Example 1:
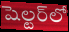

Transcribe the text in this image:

షెల్టర్‌లో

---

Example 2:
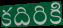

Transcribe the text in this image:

కదిరికి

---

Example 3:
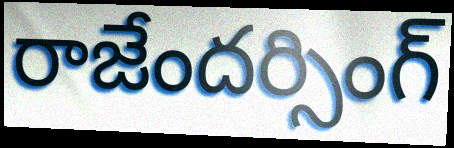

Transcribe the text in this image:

రాజేందర్సింగ్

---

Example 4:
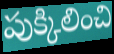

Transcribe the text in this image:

పుక్కిలించి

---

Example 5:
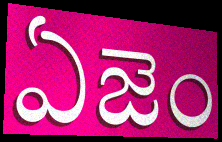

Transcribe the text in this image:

ఏజెం